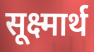
सूक्ष्मार्थ